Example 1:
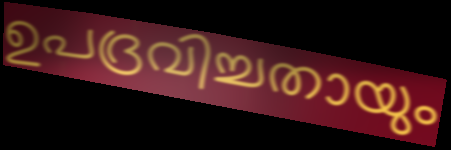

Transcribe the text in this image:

ഉപദ്രവിച്ചതായും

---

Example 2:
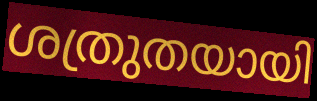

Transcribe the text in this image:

ശത്രുതയായി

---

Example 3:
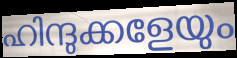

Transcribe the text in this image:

ഹിന്ദുക്കളേയും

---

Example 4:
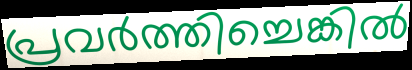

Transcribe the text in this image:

പ്രവർത്തിച്ചെങ്കിൽ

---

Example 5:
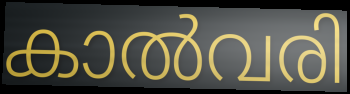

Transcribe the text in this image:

കാൽവരി